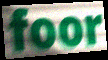
foor